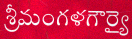
శ్రీమంగళగౌర్యై